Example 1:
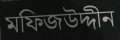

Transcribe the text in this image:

মফিজউদ্দীন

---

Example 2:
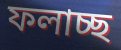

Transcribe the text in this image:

ফলাচ্ছ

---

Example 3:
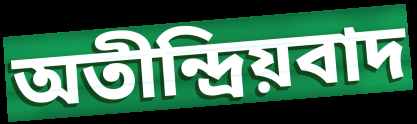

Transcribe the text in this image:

অতীন্দ্রিয়বাদ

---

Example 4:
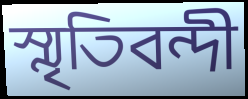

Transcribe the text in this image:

স্মৃতিবন্দী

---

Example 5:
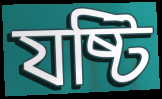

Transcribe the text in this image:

যষ্টি